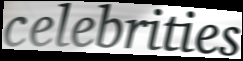
celebrities